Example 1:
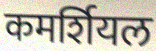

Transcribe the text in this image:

कमर्शियल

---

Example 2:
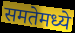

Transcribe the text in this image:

समतेमध्ये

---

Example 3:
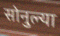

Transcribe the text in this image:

सोनुल्या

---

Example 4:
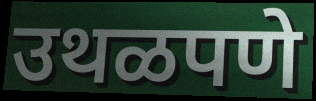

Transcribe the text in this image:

उथळपणे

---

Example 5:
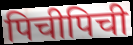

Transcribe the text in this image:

पिचीपिची